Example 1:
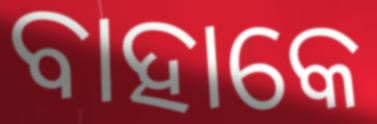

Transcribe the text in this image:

ବାହାକେ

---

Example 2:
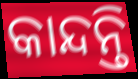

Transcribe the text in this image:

କାନ୍ଦନ୍ତି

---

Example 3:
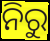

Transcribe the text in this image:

ନିରୁ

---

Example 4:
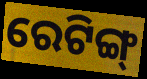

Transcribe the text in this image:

ରେଟିଙ୍ଗ୍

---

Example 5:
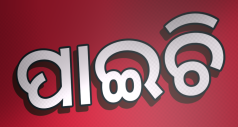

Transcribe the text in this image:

ପାଇଚି